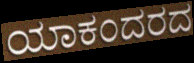
ಯಾಕಂದರದ